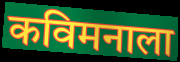
कविमनाला